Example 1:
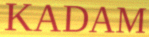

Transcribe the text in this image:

KADAM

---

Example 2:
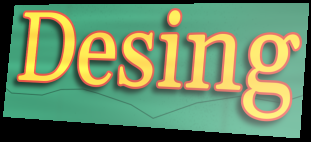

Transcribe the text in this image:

Desing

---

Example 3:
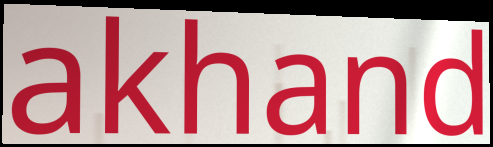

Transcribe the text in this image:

akhand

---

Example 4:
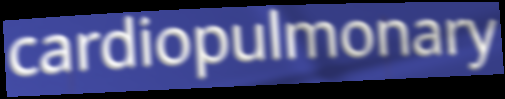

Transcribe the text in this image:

cardiopulmonary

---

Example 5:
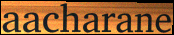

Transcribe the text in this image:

aacharane